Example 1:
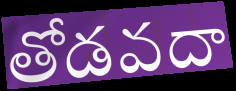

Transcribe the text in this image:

తోడవదా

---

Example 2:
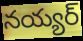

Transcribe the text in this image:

నయ్యర్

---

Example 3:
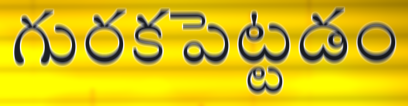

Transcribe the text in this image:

గురకపెట్టడం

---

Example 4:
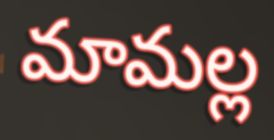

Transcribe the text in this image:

మామల్ల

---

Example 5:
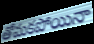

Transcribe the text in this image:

తోమకపోయినా